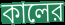
কালের